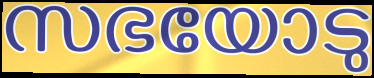
സഭയോടു